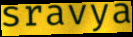
sravya